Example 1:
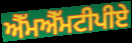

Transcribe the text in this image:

ਐੱਮਐੱਮਟੀਪੀਏ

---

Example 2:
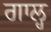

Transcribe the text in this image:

ਗਾਲ੍ਹ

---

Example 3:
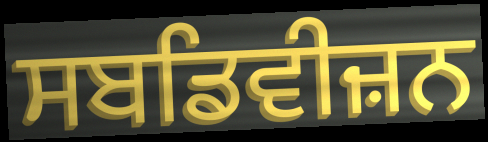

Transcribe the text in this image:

ਸਬਡਿਵੀਜ਼ਨ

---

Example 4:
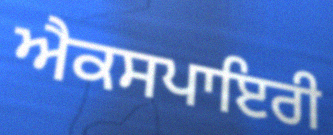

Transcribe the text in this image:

ਐਕਸਪਾਇਰੀ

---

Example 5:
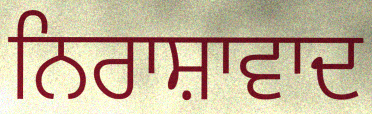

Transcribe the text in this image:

ਨਿਰਾਸ਼ਾਵਾਦ